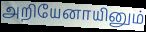
அறியேனாயினும்